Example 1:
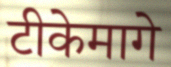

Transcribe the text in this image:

टीकेमागे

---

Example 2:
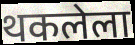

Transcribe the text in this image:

थकलेला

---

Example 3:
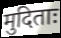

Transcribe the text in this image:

मुदिताः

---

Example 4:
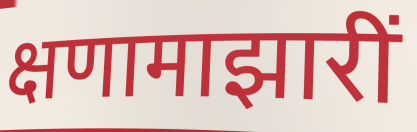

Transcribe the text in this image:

क्षणामाझारीं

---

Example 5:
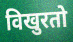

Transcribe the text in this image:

विखुरतो